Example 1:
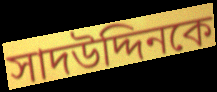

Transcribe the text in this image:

সাদউদ্দিনকে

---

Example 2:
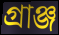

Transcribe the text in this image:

গ্রাঞ্জ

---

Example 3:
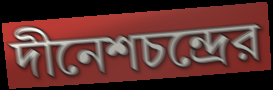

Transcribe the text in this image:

দীনেশচন্দ্রের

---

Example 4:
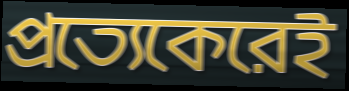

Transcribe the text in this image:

প্রত্যেকেরেই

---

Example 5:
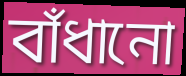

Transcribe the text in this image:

বাঁধানো